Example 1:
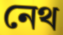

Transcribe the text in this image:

নেথ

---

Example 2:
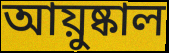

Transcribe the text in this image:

আয়ুষ্কাল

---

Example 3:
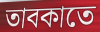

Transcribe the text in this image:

তাবকাতে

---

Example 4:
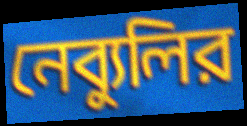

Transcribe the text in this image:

নেব্যুলির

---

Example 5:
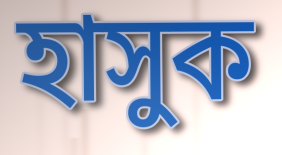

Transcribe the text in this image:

হাসুক